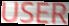
USER